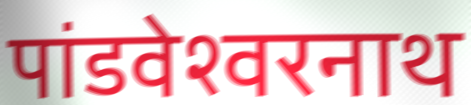
पांडवेश्वरनाथ